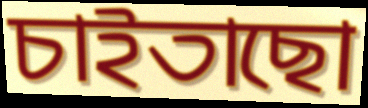
চাইতাছো